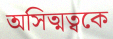
অসিত্মত্বকে